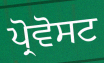
ਪ੍ਰੋਵੋਸਟ